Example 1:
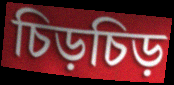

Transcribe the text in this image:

চিড়চিড়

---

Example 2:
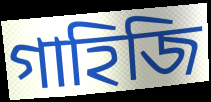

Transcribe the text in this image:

গাহিজি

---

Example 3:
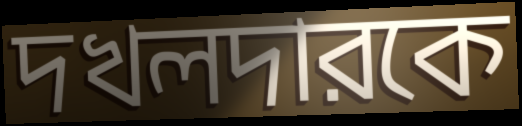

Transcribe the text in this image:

দখলদারকে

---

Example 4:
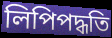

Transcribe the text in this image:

লিপিপদ্ধতি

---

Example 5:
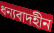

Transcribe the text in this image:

ধন্যবাদহীন